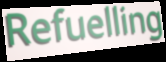
Refuelling